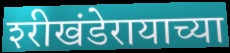
श्रीखंडेरायाच्या